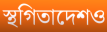
স্থগিতাদেশও